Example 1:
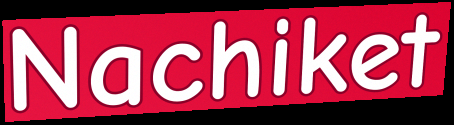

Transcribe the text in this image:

Nachiket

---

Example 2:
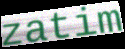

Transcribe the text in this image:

zatim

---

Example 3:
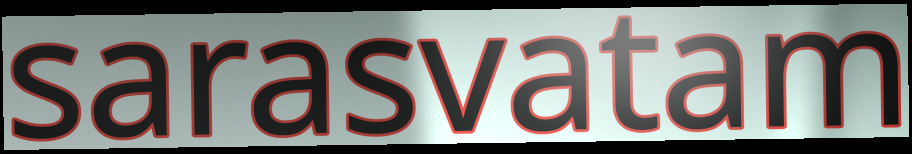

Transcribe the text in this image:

sarasvatam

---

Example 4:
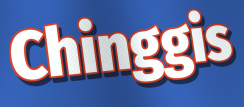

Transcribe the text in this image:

Chinggis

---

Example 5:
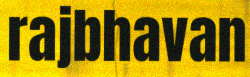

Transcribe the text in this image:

rajbhavan